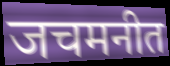
जचमनीत